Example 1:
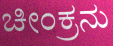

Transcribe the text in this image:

ಚೀಂಕ್ರನು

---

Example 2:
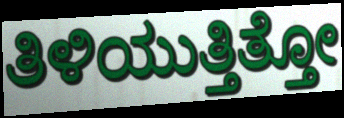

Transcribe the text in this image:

ತಿಳಿಯುತ್ತಿತ್ತೋ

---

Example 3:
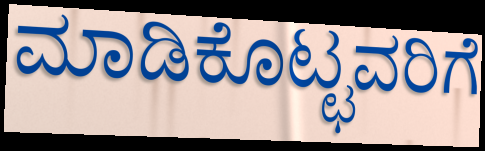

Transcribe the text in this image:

ಮಾಡಿಕೊಟ್ಟವರಿಗೆ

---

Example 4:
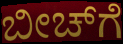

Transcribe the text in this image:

ಬೀಚ್‌ಗೆ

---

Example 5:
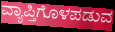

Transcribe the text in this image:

ವ್ಯಾಪ್ತಿಗೊಳಪಡುವ